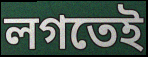
লগতেই